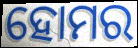
ହୋମର